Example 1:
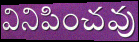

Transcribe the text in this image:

వినిపించవు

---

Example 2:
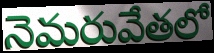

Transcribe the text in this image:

నెమరువేతలో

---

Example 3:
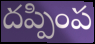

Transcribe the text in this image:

దప్పింప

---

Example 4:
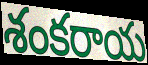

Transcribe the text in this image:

శంకరాయ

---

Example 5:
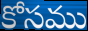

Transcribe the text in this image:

కోసము